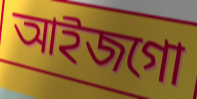
আইজগো